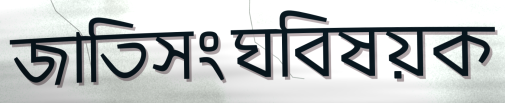
জাতিসংঘবিষয়ক